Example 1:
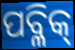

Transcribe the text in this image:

ପବ୍ଳିକ୍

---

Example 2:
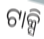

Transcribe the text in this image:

ଟାକ୍ସି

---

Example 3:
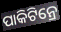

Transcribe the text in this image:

ପାକିଟିନ୍ରେ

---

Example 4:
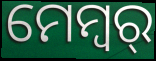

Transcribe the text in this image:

ମେମ୍ବର୍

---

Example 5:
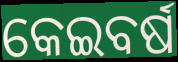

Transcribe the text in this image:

କେଇବର୍ଷ